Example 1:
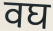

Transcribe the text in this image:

वघ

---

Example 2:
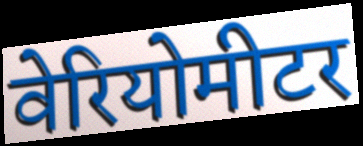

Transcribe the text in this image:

वेरियोमीटर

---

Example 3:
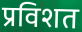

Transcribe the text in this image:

प्रविशत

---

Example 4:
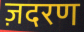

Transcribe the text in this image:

ज़दरण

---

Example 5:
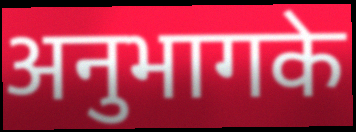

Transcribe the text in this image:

अनुभागके